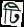
টি